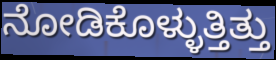
ನೋಡಿಕೊಳ್ಳುತ್ತಿತ್ತು